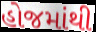
હોજમાંથી